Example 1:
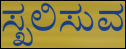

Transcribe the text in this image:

ಸ್ಖಲಿಸುವ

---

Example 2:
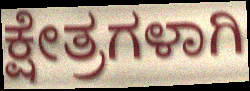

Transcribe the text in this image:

ಕ್ಷೇತ್ರಗಳಾಗಿ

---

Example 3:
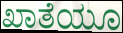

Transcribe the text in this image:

ಖಾತೆಯೂ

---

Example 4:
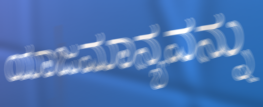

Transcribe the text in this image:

ಯಾಜಮಾನ್ಯವನ್ನು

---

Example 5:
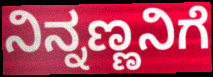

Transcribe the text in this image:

ನಿನ್ನಣ್ಣನಿಗೆ